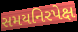
સમયનિરપેક્ષ